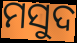
ମସୁଦ